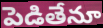
పెడితేనూ